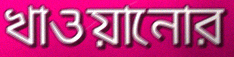
খাওয়ানোর